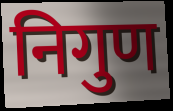
निगुण